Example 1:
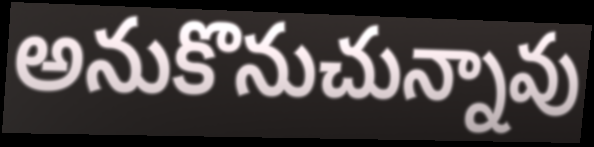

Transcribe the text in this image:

అనుకొనుచున్నావు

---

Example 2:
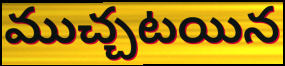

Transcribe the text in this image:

ముచ్చటయిన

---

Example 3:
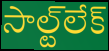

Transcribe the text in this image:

సాల్ట్‌లేక్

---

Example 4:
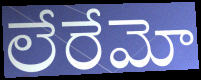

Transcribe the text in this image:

లేరేమో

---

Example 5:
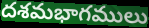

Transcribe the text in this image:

దశమభాగములు